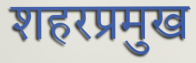
शहरप्रमुख